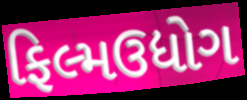
ફિલ્મઉદ્યોગ